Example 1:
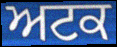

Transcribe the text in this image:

ਅਟਕ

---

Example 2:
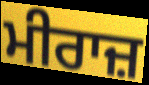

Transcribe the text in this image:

ਮੀਰਾਜ਼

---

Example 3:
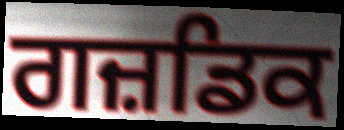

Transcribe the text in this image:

ਗਜ਼ਡਿਕ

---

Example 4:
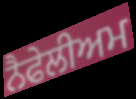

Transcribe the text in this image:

ਨੈਫੇਲੀਅਮ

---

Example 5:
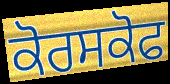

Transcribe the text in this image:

ਕੋਰਸਕੋਫ